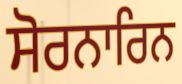
ਸੋਰਨਾਰਿਨ